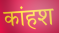
कांहश